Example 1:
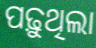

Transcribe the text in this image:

ପଢ଼ୁଥିଲା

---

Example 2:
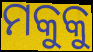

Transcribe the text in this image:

ମକୁକୁ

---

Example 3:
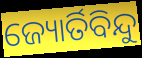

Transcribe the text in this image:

ଜ୍ୟୋର୍ତିବିନ୍ଦୁ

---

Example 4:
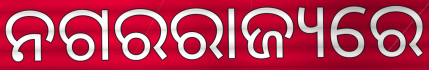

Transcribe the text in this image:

ନଗରରାଜ୍ୟରେ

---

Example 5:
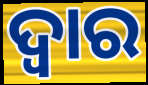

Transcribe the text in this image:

ଦ୍ୱାର